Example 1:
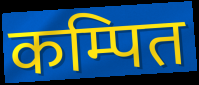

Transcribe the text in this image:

कम्पित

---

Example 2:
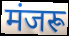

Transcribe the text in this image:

मंजरू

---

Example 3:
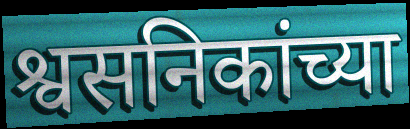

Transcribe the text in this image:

श्वसनिकांच्या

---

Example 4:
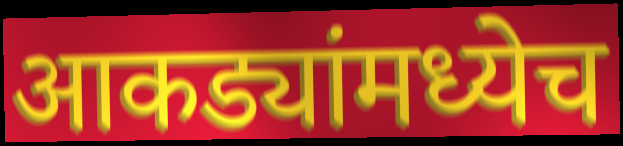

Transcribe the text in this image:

आकड्यांमध्येच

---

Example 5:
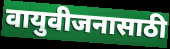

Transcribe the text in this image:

वायुवीजनासाठी